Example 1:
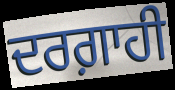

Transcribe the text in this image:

ਦਰਗ਼ਾਹੀ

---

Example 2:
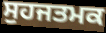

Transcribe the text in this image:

ਸੁਹਜਤਮਕ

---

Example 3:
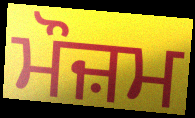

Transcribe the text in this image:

ਮੌਜ਼ਮ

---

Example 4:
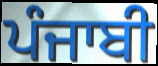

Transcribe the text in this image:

ਪੰਜਾਬੀ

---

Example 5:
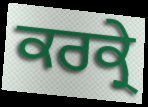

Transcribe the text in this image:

ਕਰਕ੍ਰੇ